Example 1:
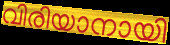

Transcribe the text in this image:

വിരിയാനായി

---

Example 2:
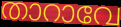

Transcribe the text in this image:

താറാവേ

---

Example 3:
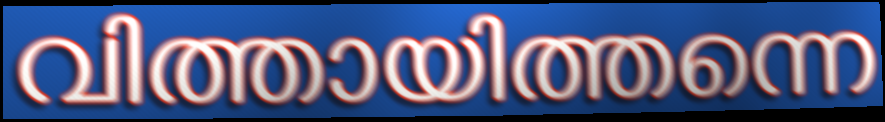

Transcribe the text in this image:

വിത്തായിത്തന്നെ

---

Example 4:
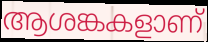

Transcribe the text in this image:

ആശങ്കകളാണ്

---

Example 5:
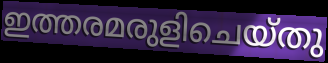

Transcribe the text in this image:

ഇത്തരമരുളിചെയ്തു